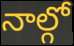
నాల్గో